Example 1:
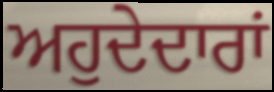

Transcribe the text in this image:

ਅਹੁਦੇਦਾਰਾਂ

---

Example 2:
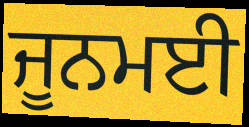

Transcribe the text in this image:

ਜੂਨਮਈ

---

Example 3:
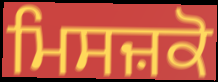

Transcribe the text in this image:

ਮਿਸਜ਼ਕੋ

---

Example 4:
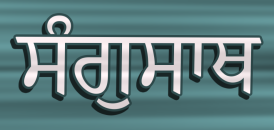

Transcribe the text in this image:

ਸੰਗੁਸਾਥ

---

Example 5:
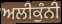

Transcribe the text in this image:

ਅਲੀਕੁੰਨੀ